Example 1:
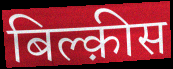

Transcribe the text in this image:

बिल्क़ीस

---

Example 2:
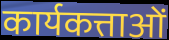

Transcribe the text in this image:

कार्यकत्ताओं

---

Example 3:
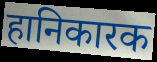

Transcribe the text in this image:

हानिकारक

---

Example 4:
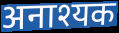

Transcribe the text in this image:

अनाश्यक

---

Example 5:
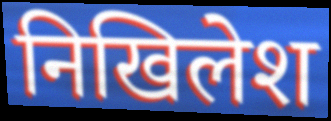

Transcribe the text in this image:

निखिलेश